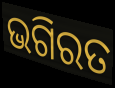
ଭଗିରତ